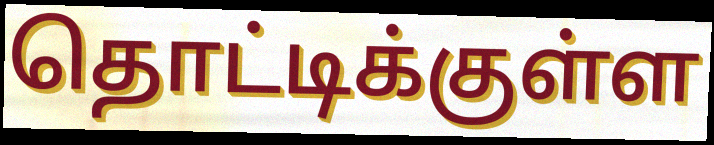
தொட்டிக்குள்ள